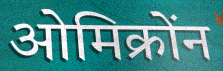
ओमिक्रोंन